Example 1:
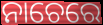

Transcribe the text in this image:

ନାଚେରେ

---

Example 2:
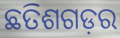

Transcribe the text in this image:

ଛତିଶଗଡ଼ର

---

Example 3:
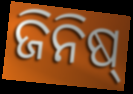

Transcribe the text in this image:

ଜିନିଷ୍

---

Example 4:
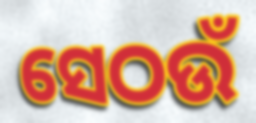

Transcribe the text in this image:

ସେଠଉଁ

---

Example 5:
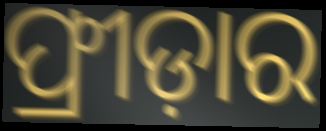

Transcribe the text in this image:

ଫ୍ରୀଡ଼ାର